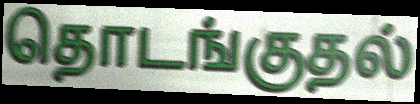
தொடங்குதல்